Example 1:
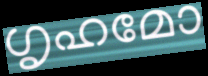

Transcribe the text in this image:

ഗൃഹമോ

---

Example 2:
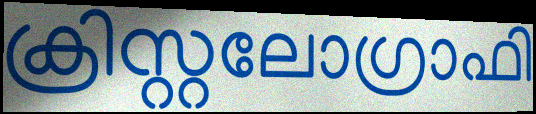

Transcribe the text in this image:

ക്രിസ്റ്റലോഗ്രാഫി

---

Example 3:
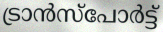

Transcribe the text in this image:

ട്രാൻസ്പോർട്ട്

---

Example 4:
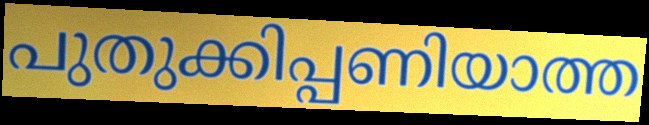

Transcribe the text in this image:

പുതുക്കിപ്പണിയാത്ത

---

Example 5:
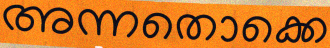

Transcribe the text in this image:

അന്നതൊക്കെ